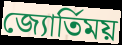
জ্যোর্তিময়